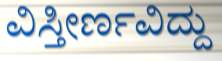
ವಿಸ್ತೀರ್ಣವಿದ್ದು